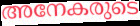
അനേകരുടെ